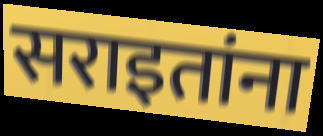
सराइतांना